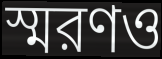
স্মরণও